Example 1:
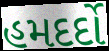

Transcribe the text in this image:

હમદર્દો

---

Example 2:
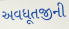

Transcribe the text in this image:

અવધૂતજીની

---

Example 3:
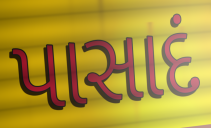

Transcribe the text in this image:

પાસાદં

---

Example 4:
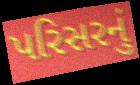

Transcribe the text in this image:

પરિસરનું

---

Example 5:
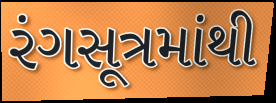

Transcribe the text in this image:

રંગસૂત્રમાંથી